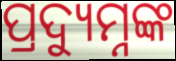
ପ୍ରଦ୍ୟୁମ୍ନଙ୍କ